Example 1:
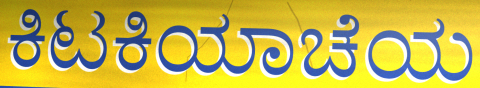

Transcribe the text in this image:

ಕಿಟಕಿಯಾಚೆಯ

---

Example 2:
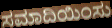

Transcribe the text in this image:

ಸಮಾದಿಯಿಂಸು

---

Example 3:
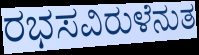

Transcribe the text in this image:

ರಭಸವಿರುಳೆನುತ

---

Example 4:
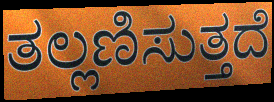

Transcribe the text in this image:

ತಲ್ಲಣಿಸುತ್ತದೆ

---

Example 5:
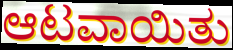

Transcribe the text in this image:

ಆಟವಾಯಿತು